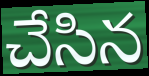
చేసిన